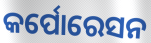
କର୍ପୋରେସନ